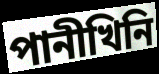
পানীখিনি